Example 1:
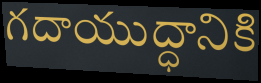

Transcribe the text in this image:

గదాయుద్ధానికి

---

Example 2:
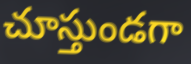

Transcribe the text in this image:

చూస్తుండగా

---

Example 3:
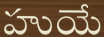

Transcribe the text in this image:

హుయే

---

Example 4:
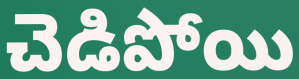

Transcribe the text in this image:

చెడిపోయి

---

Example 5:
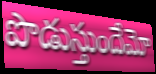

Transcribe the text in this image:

పొడుస్తుందేమో